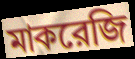
মাকরেজি